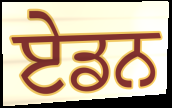
ਏਡਨ